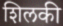
शिलकी